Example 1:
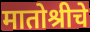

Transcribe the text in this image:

मातोश्रीचे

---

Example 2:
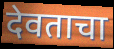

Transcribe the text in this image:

देवताचा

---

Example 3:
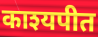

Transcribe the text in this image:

काश्यपीत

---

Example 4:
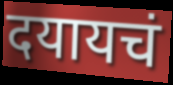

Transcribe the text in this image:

दयायचं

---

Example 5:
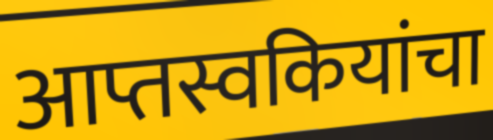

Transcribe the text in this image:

आप्तस्वकियांचा